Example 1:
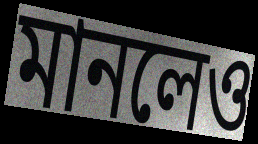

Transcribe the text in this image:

মানলেও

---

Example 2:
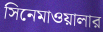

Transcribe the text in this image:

সিনেমাওয়ালার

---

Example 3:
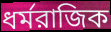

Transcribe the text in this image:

ধর্মরাজিক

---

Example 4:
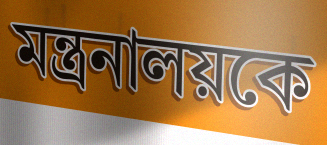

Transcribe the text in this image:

মন্ত্রনালয়কে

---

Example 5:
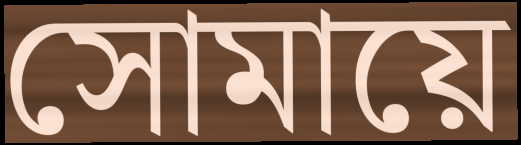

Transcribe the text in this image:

সোমায়ে